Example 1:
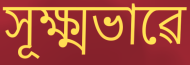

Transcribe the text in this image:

সূক্ষ্মভাৱে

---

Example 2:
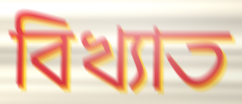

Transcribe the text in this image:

বিখ্যাত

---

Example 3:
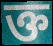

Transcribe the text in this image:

ক্ত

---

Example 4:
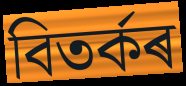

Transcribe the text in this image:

বিতৰ্কৰ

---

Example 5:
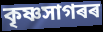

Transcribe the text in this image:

কৃষ্ণসাগৰৰ